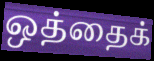
ஒத்தைக்